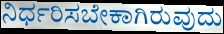
ನಿರ್ಧರಿಸಬೇಕಾಗಿರುವುದು